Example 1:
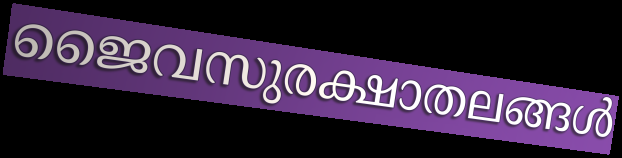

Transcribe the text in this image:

ജൈവസുരക്ഷാതലങ്ങൾ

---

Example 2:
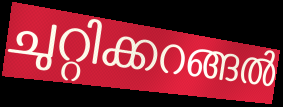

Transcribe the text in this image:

ചുറ്റിക്കറങ്ങൽ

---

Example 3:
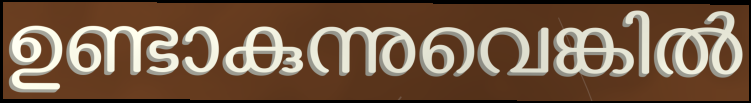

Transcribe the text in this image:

ഉണ്ടാകുന്നുവെങ്കിൽ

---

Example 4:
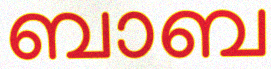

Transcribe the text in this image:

ബാബ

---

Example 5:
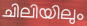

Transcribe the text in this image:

ചിലിയിലും